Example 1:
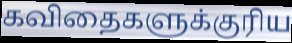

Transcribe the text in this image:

கவிதைகளுக்குரிய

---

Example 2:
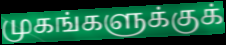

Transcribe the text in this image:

முகங்களுக்குக்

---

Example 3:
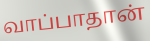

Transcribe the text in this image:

வாப்பாதான்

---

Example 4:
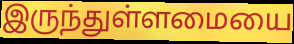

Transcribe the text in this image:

இருந்துள்ளமையை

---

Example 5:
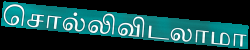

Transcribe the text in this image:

சொல்லிவிடலாமா